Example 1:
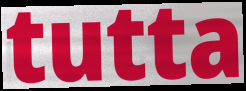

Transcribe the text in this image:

tutta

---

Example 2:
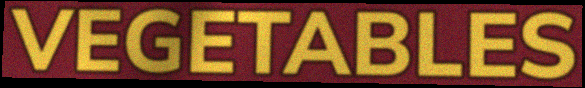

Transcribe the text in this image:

VEGETABLES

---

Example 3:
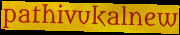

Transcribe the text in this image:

pathivukalnew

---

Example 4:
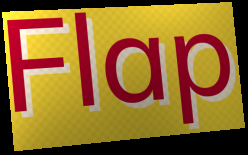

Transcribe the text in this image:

Flap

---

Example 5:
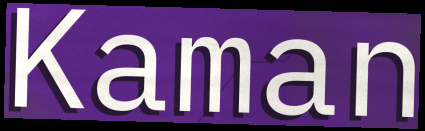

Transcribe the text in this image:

Kaman